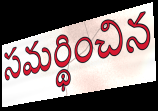
సమర్థించిన